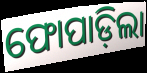
ଫୋପାଡ଼ିଲା